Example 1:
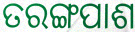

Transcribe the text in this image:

ତରଙ୍ଗପାଶ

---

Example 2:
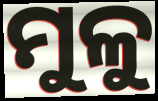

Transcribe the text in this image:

ମୁଳୁ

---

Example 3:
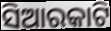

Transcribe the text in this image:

ସିଆରକାଟି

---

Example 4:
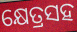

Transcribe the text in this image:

କ୍ଷେତ୍ରସହ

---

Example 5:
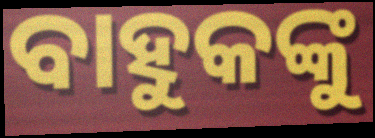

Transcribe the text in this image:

ବାହୁକଙ୍କୁ